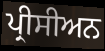
ਪ੍ਰੀਸੀਅਨ